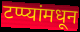
टप्प्यांमधून